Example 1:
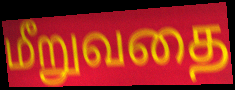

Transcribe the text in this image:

மீறுவதை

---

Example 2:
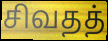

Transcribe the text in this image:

சிவதத்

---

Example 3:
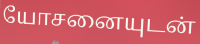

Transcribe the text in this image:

யோசனையுடன்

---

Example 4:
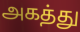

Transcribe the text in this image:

அகத்து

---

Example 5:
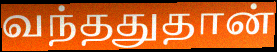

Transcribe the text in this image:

வந்ததுதான்